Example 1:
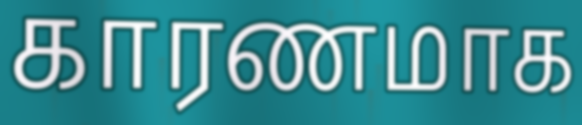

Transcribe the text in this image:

காரணமாக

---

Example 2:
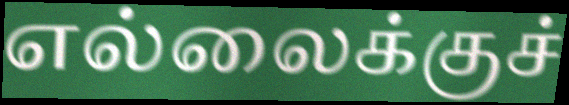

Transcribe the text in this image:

எல்லைக்குச்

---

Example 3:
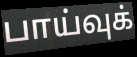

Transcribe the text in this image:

பாய்வுக்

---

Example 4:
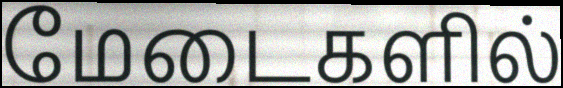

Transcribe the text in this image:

மேடைகளில்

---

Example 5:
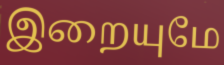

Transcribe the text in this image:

இறையுமே